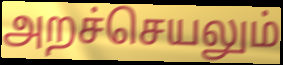
அறச்செயலும்